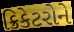
ક્રિકેટરોને